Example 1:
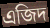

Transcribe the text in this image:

এজিদ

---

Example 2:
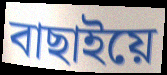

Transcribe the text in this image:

বাছাইয়ে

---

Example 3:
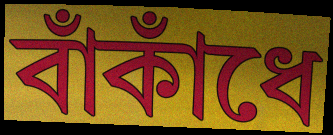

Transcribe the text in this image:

বাঁকাঁধে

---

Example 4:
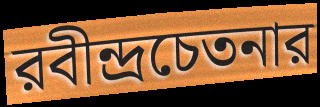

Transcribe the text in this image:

রবীন্দ্রচেতনার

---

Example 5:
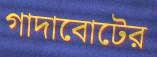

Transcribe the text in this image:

গাদাবোটের